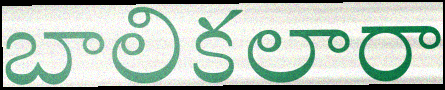
బాలికలారా